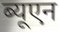
ब्यूएन